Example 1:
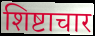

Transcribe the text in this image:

शिष्टाचार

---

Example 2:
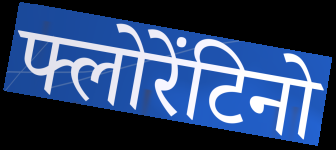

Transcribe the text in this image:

फ्लोरेंटिनो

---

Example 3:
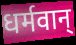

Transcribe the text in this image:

धर्मवान्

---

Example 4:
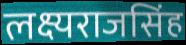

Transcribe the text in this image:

लक्ष्यराजसिंह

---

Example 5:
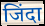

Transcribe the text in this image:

जिंदा